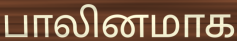
பாலினமாக